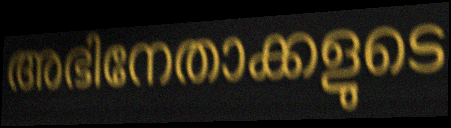
അഭിനേതാക്കളുടെ